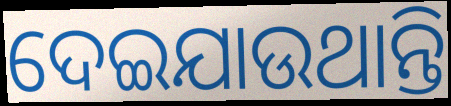
ଦେଇଯାଉଥାନ୍ତି